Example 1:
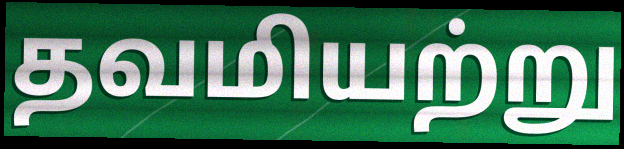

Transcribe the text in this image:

தவமியற்று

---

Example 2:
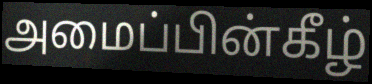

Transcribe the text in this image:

அமைப்பின்கீழ்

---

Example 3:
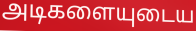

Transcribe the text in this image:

அடிகளையுடைய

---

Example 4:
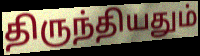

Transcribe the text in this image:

திருந்தியதும்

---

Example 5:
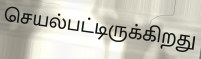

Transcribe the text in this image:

செயல்பட்டிருக்கிறது